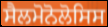
ਸੈਲਮੋਨੋਲੋਸਿਸ